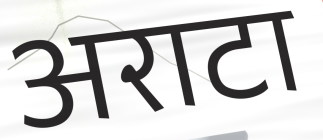
अराटा